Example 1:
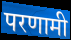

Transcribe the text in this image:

परणामी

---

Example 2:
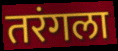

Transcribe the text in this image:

तरंगला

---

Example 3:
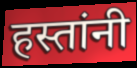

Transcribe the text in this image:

हस्तांनी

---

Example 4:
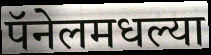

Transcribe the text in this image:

पॅनेलमधल्या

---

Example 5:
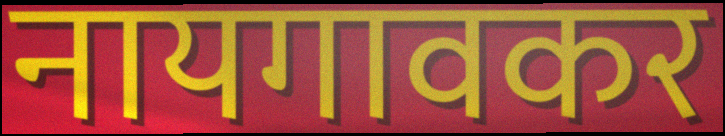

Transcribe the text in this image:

नायगावकर